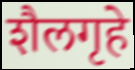
शैलगृहे